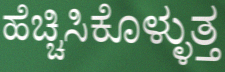
ಹೆಚ್ಚಿಸಿಕೊಳ್ಳುತ್ತ